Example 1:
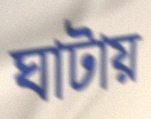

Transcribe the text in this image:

ঘাটায়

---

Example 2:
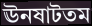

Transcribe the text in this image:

ঊনষাটতম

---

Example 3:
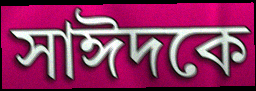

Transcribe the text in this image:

সাঈদকে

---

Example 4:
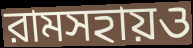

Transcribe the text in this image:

রামসহায়ও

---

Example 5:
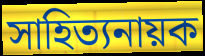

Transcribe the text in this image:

সাহিত্যনায়ক